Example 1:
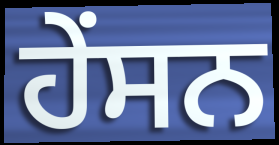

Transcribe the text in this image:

ਹੇਂਸਨ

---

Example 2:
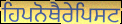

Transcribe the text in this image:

ਹਿਪਨੋਥੈਰੇਪਿਸਟ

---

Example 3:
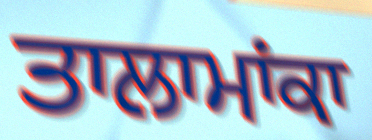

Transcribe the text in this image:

ਤਾਲਾਮਾਂਕਾ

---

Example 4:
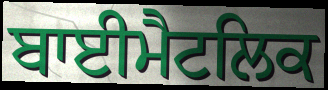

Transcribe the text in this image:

ਬਾਈਮੈਟਲਿਕ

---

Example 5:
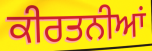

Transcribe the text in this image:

ਕੀਰਤਨੀਆਂ